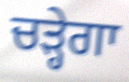
ਚੜ੍ਹੇਗਾ